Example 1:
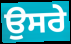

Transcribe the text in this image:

ਉਸਰੇ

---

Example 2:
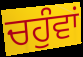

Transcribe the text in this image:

ਚਹੁੰਵਾਂ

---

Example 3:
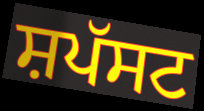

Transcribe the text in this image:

ਸ਼ਪੱਸਟ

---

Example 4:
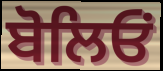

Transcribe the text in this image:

ਬੋਲਿਓਂ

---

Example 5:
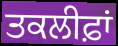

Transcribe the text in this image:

ਤਕਲੀਫ਼ਾਂ